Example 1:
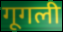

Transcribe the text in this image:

गूगली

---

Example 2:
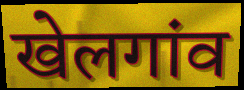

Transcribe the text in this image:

खेलगांव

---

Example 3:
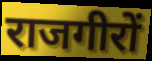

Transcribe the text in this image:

राजगीरों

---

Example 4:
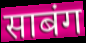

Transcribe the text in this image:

साबंग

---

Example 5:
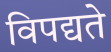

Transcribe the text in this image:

विपद्यते